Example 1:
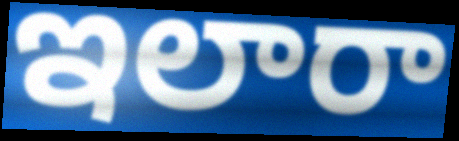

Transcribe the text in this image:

ఇలారా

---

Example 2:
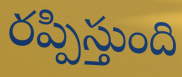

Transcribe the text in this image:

రప్పిస్తుంది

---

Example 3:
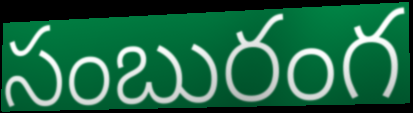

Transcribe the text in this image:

సంబురంగ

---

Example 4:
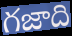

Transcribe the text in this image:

గజాది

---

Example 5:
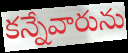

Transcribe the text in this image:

కన్నేవారును